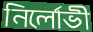
নির্লোভী